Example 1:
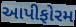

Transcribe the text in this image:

આપીફોરમ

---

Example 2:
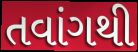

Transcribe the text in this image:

તવાંગથી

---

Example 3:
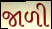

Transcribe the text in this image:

જાળી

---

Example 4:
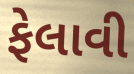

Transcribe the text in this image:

ફેલાવી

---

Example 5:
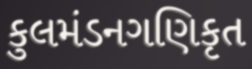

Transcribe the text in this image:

કુલમંડનગણિકૃત